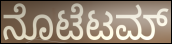
ನೊಟೆಟಮ್